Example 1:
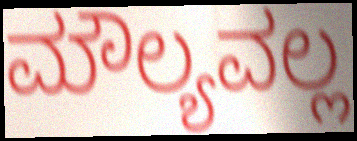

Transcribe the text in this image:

ಮೌಲ್ಯವಲ್ಲ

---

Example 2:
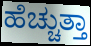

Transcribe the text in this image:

ಹೆಚ್ಚುತ್ತಾ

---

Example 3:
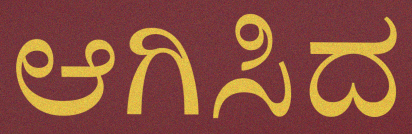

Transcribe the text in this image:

ಆಗಿಸಿದ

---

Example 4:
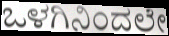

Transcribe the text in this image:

ಒಳಗಿನಿಂದಲೇ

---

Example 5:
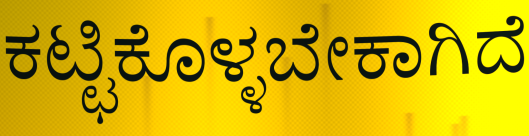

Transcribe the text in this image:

ಕಟ್ಟಿಕೊಳ್ಳಬೇಕಾಗಿದೆ